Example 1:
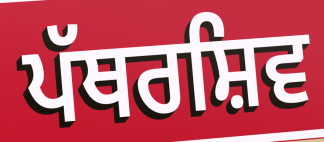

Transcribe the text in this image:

ਪੱਥਰਸ਼ਿਵ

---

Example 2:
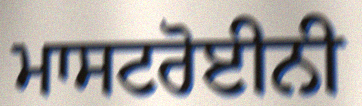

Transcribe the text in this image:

ਮਾਸਟਰੋਈਨੀ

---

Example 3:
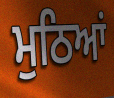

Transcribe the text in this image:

ਮੁਠਿਆਂ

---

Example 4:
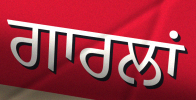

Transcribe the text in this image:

ਗਾਰਲਾਂ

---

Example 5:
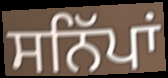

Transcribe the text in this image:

ਸਨਿੱਪਾਂ